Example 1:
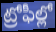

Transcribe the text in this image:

ట్రోఫీల్లో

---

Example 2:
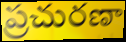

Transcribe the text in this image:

ప్రచురణా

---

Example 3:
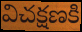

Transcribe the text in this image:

విచక్షణకి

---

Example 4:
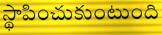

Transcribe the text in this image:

స్థాపించుకుంటుంది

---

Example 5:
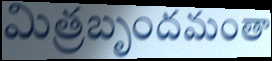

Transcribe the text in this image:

మిత్రబృందమంతా